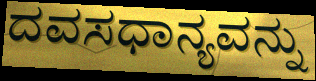
ದವಸಧಾನ್ಯವನ್ನು